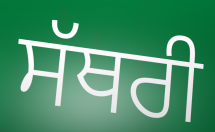
ਸੱਥਰੀ